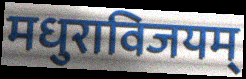
मधुराविजयम्